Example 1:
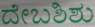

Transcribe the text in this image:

ದೇಬಶಿಶು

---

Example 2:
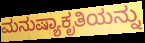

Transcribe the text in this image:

ಮನುಷ್ಯಾಕೃತಿಯನ್ನು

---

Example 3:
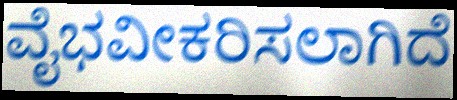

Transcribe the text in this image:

ವೈಭವೀಕರಿಸಲಾಗಿದೆ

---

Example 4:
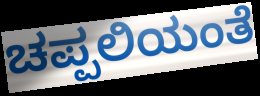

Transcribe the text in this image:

ಚಪ್ಪಲಿಯಂತೆ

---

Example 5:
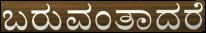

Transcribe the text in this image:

ಬರುವಂತಾದರೆ